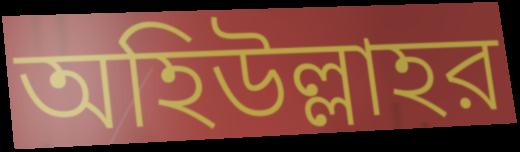
অহিউল্লাহর